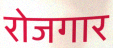
रोजगार